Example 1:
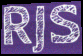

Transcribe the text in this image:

RJS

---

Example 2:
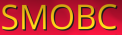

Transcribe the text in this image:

SMOBC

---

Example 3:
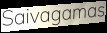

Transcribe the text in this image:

Saivagamas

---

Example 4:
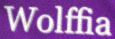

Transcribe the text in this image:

Wolffia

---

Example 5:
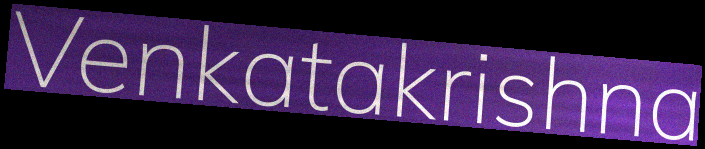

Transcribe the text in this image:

Venkatakrishna